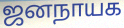
ஜனநாயக